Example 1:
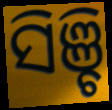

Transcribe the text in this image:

ସିଞ୍ଚି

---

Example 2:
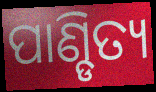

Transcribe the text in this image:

ପାଣ୍ଡିତ୍ୟ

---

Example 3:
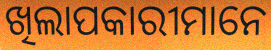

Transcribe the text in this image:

ଖିଲାପକାରୀମାନେ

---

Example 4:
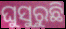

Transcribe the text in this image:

ଘୁସୁରୁଛି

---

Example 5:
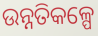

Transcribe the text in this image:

ଉନ୍ନତିକଳ୍ପେ